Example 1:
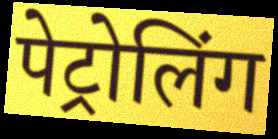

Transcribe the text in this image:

पेट्रोलिंग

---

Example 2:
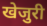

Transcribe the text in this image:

खेजुरी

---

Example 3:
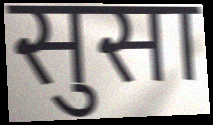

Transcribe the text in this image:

सुसा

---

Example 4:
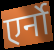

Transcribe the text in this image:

एर्नो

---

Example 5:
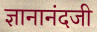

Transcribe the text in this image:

ज्ञानानंदजी